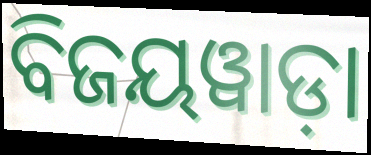
ବିଜୟୱାଡ଼ା